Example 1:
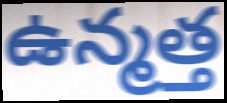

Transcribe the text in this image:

ఉన్మత్త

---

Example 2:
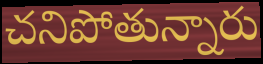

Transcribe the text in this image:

చనిపోతున్నారు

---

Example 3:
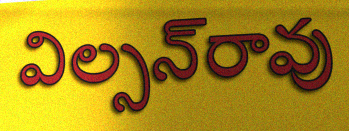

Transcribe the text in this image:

విల్సన్‌రావు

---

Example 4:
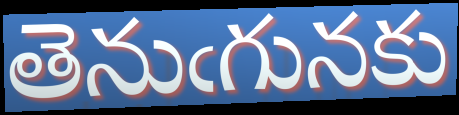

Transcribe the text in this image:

తెనుఁగునకు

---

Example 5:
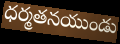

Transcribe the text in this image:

ధర్మతనయుండు